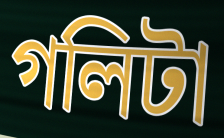
গলিটা